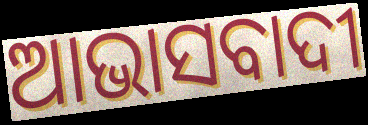
ଆଭାସବାଦୀ